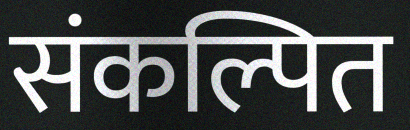
संकल्पित